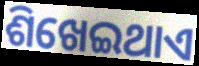
ଶିଖେଇଥାଏ